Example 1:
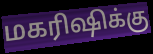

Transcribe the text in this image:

மகரிஷிக்கு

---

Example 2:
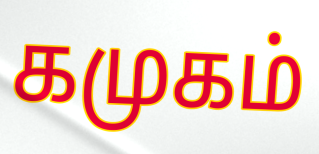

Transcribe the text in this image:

கமுகம்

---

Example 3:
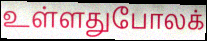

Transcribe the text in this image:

உள்ளதுபோலக்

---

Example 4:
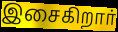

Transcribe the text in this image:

இசைகிறார்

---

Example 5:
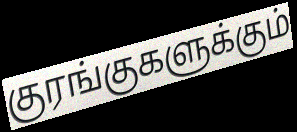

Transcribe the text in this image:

குரங்குகளுக்கும்